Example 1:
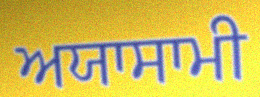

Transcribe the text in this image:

ਅਯਾਸਾਮੀ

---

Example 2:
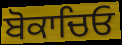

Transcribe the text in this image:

ਬੋਕਾਚਿਓ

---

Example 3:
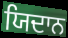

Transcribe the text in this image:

ਯਿਦਾਨ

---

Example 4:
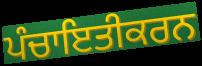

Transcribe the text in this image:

ਪੰਚਾਇਤੀਕਰਨ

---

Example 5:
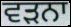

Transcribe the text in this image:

ਵੜਨਾ